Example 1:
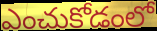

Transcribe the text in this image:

ఎంచుకోడంలో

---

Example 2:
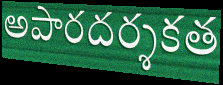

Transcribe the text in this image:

అపారదర్శకత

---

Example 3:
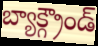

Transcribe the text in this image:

బ్యాక్గ్రౌండ్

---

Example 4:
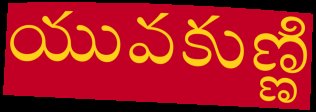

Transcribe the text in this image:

యువకుణ్ణి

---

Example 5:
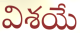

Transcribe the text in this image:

విశయే